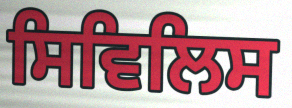
ਸਿਵਿਲਿਸ